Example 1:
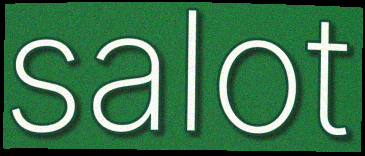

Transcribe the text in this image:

salot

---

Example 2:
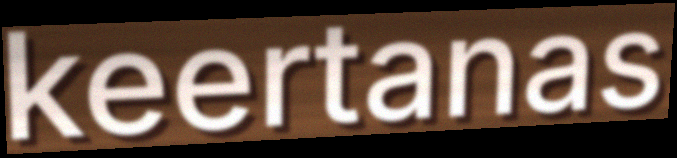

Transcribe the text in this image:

keertanas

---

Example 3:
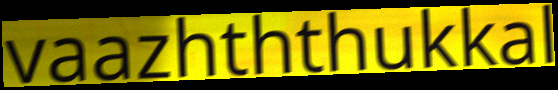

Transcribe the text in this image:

vaazhththukkal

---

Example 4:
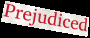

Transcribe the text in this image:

Prejudiced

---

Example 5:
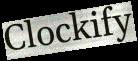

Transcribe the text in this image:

Clockify